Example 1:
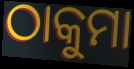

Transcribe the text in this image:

ଠାକୁମା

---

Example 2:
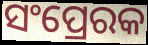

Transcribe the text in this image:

ସଂପ୍ରେରକ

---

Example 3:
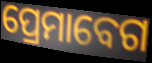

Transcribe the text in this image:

ପ୍ରେମାବେଗ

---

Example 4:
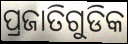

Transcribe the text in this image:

ପ୍ରଜାତିଗୁଡିକ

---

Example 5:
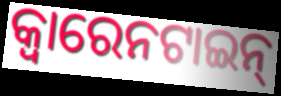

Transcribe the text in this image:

କ୍ୱାରେନଟାଇନ୍